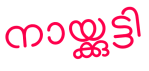
നായ്ക്കുട്ടി